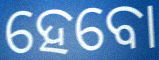
ହେବୋ